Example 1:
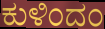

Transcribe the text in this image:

ಕುಳಿಂದಂ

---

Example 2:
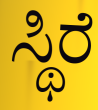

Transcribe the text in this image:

ಸ್ಥಿರೆ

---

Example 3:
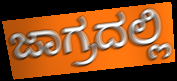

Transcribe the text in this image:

ಜಾಗ್ರದಲ್ಲಿ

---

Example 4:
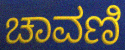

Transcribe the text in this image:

ಚಾವಣಿ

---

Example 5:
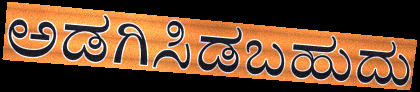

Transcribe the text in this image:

ಅಡಗಿಸಿಡಬಹುದು